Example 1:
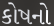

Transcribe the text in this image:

કોષનો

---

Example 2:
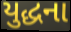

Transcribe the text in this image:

યુદ્ધના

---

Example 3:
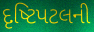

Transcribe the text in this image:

દૃષ્ટિપટલની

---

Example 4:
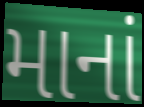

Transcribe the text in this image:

માનાં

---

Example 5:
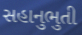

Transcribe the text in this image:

સહાનુભુતી